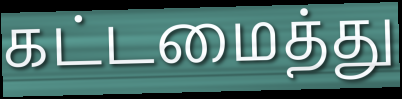
கட்டமைத்து